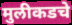
मुलीकडचे